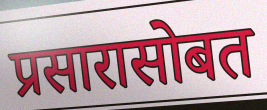
प्रसारासोबत